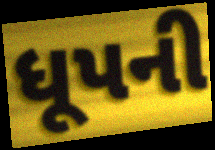
ધૂપની